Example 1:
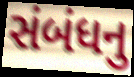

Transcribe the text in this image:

સંબંધનુ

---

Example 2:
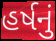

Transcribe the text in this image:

હર્ષનું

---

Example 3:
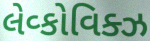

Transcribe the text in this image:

લેવ્કોવિક્ઝ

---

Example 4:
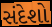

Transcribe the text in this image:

સંદેશો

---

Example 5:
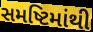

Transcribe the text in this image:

સમષ્ટિમાંથી